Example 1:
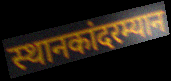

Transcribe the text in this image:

स्थानकांदरम्यान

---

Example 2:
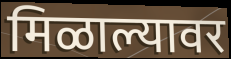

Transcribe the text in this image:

मिळाल्यावर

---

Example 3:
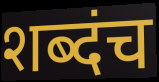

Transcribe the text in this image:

शब्दंच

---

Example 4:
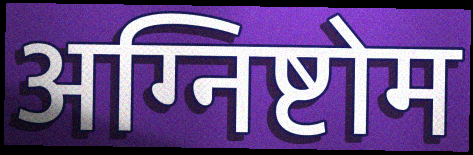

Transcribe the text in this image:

अग्निष्टोम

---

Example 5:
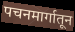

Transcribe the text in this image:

पचनमार्गातून